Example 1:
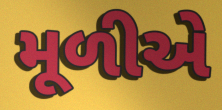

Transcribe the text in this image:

મૂળીએ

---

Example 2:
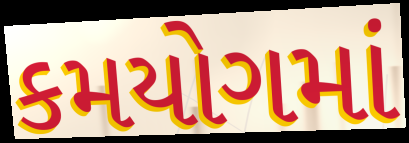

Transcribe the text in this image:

કમયોગમાં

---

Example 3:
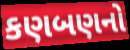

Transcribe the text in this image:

કણબણનો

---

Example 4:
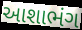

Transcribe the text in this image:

આશાભંગ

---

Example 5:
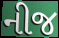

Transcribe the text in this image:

નીજ